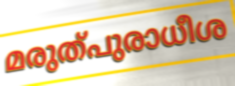
മരുത്പുരാധീശ